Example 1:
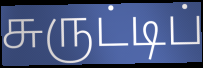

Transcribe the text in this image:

சுருட்டிப்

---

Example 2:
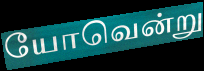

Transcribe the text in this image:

யோவென்று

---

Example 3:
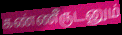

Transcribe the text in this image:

கண்ணீருடனும்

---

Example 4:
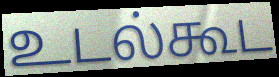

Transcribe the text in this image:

உடல்கூட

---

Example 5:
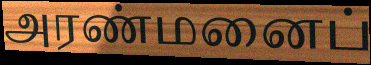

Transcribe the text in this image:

அரண்மனைப்